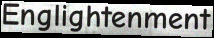
Englightenment